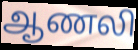
ஆணலி